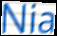
Nia